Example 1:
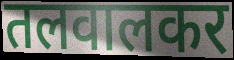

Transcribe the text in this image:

तलवालकर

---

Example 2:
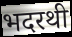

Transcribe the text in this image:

भदरथी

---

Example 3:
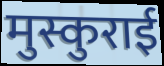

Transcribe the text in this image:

मुस्कुराई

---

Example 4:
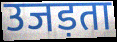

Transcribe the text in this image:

उजड़ता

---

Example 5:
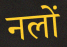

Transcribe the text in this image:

नलों